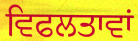
ਵਿਫਲਤਾਵਾਂ